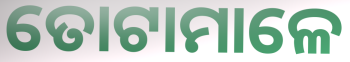
ତୋଟାମାଳେ